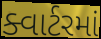
ક્વાર્ટરમાં